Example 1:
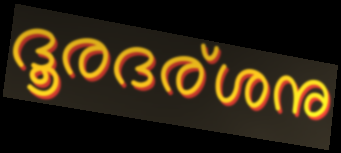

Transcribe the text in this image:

ദൂരദര്ശനു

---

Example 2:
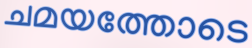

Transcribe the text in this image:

ചമയത്തോടെ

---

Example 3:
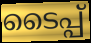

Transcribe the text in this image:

ടൈപ്പ്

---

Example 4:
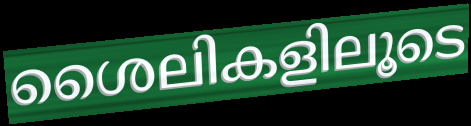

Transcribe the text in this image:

ശൈലികളിലൂടെ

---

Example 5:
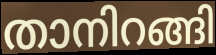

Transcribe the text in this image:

താനിറങ്ങി